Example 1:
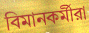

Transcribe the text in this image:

বিমানকর্মীরা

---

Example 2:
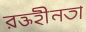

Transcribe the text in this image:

রক্তহীনতা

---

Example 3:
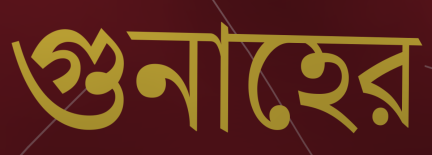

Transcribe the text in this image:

গুনাহের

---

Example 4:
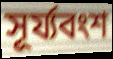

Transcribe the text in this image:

সূর্য্যবংশ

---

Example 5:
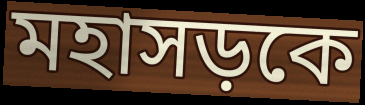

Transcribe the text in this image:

মহাসড়কে